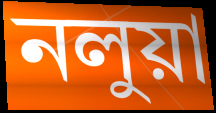
নলুয়া